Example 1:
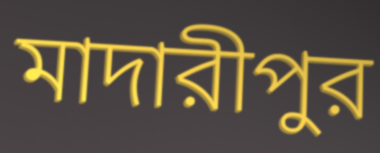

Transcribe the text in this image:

মাদারীপুর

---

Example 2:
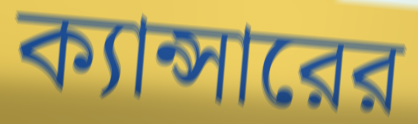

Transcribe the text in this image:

ক্যান্সারের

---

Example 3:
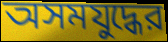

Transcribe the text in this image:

অসমযুদ্ধের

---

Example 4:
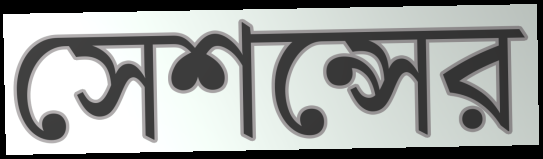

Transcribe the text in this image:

সেশন্সের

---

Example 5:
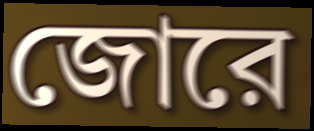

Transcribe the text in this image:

জোরে